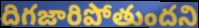
దిగజారిపోతుందని